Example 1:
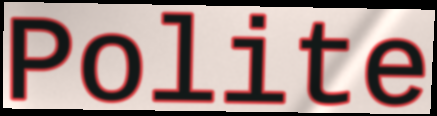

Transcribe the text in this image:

Polite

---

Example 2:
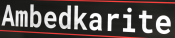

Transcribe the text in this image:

Ambedkarite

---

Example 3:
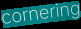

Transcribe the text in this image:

cornering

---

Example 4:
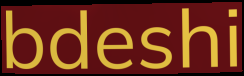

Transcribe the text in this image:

bdeshi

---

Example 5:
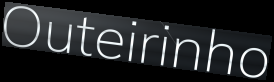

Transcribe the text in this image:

Outeirinho